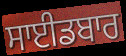
ਸਾਈਡਬਾਰ